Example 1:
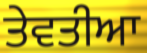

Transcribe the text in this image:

ਤੇਵਤੀਆ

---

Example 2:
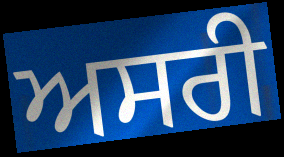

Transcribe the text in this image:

ਅਸਰੀ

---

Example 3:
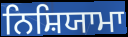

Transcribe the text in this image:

ਨਿਸ਼ਿਯਾਮਾ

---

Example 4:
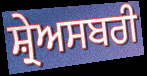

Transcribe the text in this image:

ਸ਼੍ਰੇਅਸਬਰੀ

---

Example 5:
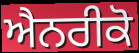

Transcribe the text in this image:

ਐਨਰੀਕੋ